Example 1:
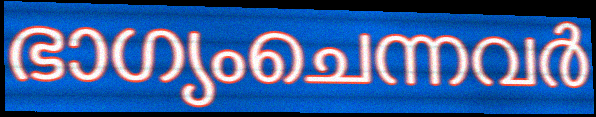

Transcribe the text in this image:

ഭാഗ്യംചെന്നവർ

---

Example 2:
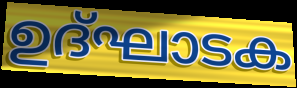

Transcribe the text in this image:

ഉദ്ഘാടക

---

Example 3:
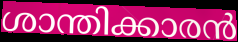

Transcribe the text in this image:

ശാന്തിക്കാരൻ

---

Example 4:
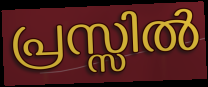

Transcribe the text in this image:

പ്രസ്സിൽ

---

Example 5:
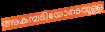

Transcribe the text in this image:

അകമ്പടിയോടെയുള്ള